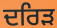
ਦਰਿੜ